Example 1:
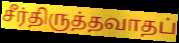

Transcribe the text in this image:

சீர்திருத்தவாதப்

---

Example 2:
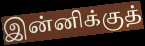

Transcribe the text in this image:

இன்னிக்குத்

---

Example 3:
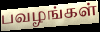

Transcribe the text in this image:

பவழங்கள்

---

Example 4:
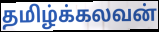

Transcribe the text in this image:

தமிழ்க்கலவன்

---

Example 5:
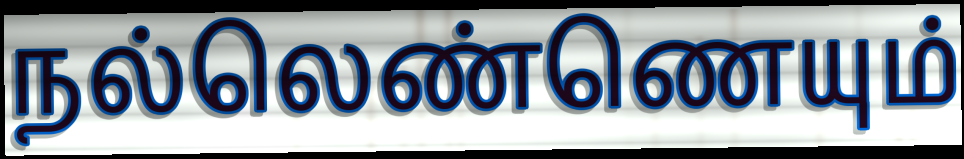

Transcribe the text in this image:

நல்லெண்ணெயும்